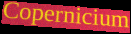
Copernicium